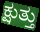
ಕ್ಷುತ್ತು